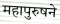
महापुरुषने